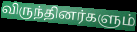
விருந்தினர்களும்